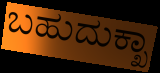
ಬಹುದುಕ್ಖಾ